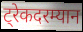
ट्रेकदरम्यान